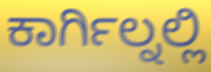
ಕಾರ್ಗಿಲ್ನಲ್ಲಿ